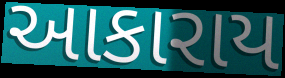
આકારાય